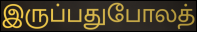
இருப்பதுபோலத்